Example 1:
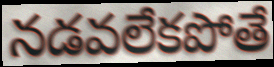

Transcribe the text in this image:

నడవలేకపోతే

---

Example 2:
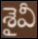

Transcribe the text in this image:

శైవీ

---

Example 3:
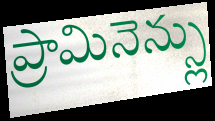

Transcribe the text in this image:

ప్రామినెన్స్లు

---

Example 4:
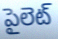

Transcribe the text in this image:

పైలెట్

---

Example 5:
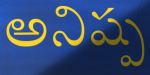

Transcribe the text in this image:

అనిష్ప